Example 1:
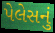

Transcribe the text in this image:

પેલેસનું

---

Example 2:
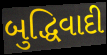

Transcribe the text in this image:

બુદ્ધિવાદી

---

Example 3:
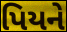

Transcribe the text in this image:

પિયને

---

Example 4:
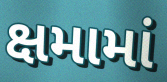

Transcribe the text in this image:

ક્ષમામાં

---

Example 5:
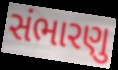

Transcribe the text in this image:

સંભારણુ